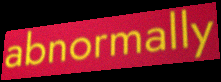
abnormally